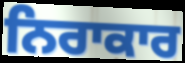
ਨਿਰਾਕਾਰ